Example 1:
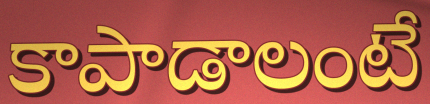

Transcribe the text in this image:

కాపాడాలంటే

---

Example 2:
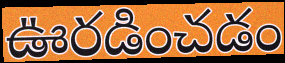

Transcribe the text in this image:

ఊరడించడం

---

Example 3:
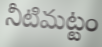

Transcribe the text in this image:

నీటిమట్టం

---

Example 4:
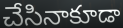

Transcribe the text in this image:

చేసినాకూడా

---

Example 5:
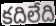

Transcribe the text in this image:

కదిలేది